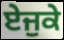
ਏਜੁਕੇ